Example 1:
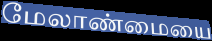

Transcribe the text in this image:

மேலாண்மையை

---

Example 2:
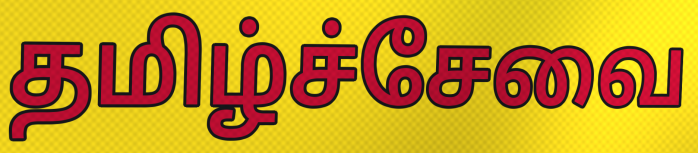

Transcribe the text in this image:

தமிழ்ச்சேவை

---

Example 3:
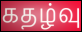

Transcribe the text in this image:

கதழ்வு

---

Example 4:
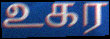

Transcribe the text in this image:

உகர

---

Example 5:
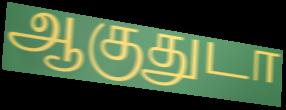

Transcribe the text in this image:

ஆகுதுடா